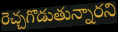
రెచ్చగొడుతున్నారని